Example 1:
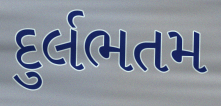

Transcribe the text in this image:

દુર્લભતમ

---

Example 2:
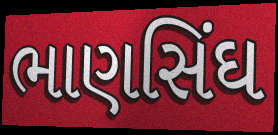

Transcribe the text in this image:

ભાણસિંઘ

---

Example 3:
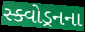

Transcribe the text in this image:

સ્ક્વોડ્રનના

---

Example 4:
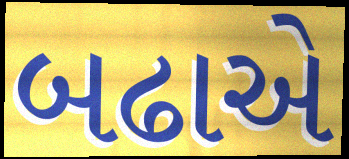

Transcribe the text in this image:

બઢાએ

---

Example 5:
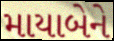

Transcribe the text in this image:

માયાબેને